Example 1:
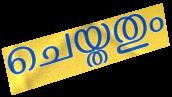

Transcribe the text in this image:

ചെയ്തതും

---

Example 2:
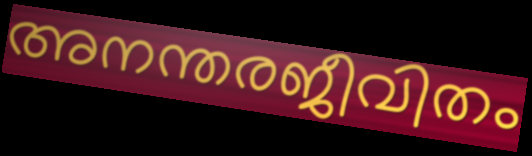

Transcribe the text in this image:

അനന്തരജീവിതം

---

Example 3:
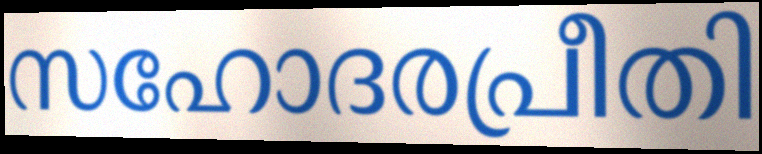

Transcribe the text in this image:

സഹോദരപ്രീതി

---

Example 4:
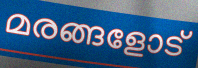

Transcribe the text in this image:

മരങ്ങളോട്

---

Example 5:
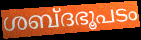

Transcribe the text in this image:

ശബ്ദഭൂപടം